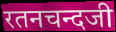
रतनचन्दजी